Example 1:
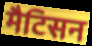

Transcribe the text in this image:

मैटिसन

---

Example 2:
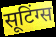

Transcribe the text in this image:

सूटिंग्स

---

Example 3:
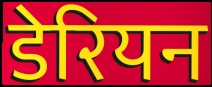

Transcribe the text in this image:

डेरियन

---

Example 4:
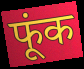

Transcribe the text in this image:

फूंक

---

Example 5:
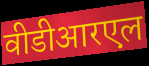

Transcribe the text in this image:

वीडीआरएल